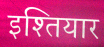
इश्तियार